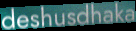
deshusdhaka